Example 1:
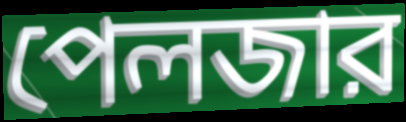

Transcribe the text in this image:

পেলজার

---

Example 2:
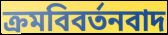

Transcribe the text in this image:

ক্রমবিবর্তনবাদ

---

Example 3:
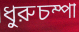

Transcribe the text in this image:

ধুরুচম্পা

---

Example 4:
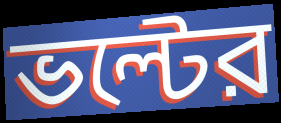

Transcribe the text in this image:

ভল্টের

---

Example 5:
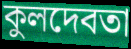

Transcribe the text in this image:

কুলদেবতা